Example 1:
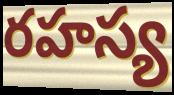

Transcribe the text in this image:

రహస్య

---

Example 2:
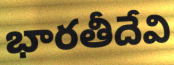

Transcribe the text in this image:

భారతీదేవి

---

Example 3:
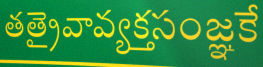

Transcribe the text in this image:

తత్రైవావ్యక్తసంజ్ఞకే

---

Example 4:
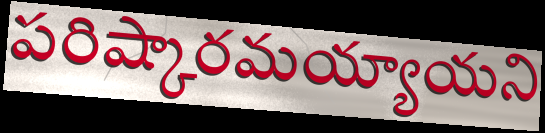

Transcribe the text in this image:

పరిష్కారమయ్యాయని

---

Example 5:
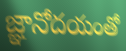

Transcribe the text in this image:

జ్ఞానోదయంతో